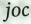
joc